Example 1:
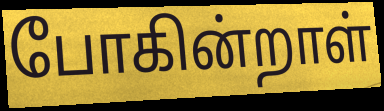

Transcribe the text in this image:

போகின்றாள்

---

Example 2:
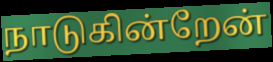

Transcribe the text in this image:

நாடுகின்றேன்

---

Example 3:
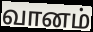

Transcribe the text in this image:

வானம்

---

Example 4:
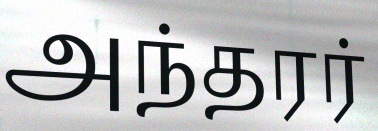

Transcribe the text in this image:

அந்தரர்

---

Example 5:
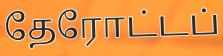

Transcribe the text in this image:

தேரோட்டப்